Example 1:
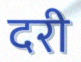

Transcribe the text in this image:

दरी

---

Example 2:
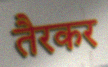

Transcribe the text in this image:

तैरकर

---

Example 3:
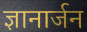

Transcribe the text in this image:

ज्ञानार्जन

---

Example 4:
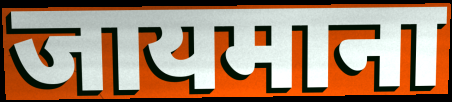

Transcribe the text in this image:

जायमाना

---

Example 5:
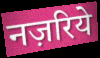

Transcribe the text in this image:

नज़रिये